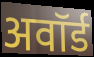
अवॉर्ड